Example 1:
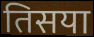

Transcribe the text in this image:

तिसया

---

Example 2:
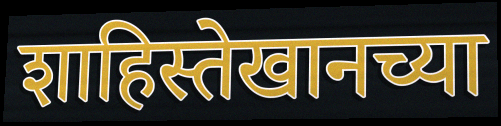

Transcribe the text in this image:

शाहिस्तेखानच्या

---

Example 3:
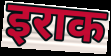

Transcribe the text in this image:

इराक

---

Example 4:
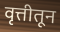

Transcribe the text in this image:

वृत्तीतून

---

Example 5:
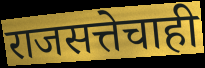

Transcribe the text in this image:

राजसत्तेचाही